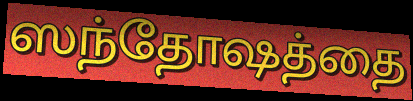
ஸந்தோஷத்தை